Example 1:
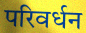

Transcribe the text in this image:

परिवर्धन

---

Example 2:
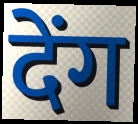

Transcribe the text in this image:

देंग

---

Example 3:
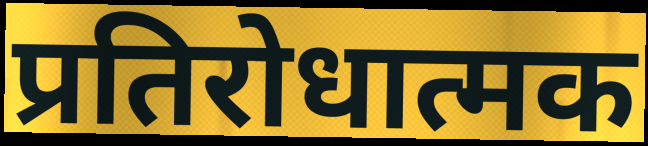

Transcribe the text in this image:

प्रतिरोधात्मक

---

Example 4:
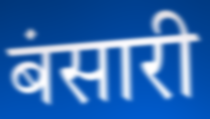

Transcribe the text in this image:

बंसारी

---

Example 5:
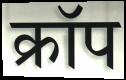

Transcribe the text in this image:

क्रॉप